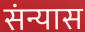
संन्यास